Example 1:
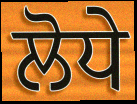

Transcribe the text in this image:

ਲੋਧੇ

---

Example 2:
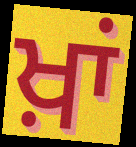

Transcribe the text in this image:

ਖ਼ਾਂ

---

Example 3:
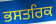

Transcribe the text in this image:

ਭਸਤਰਿਕ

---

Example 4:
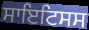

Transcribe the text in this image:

ਸਾਇਟਿਸਸ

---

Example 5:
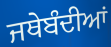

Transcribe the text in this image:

ਜਥੇਬੰਦੀਆਂ